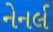
નેનર્લ